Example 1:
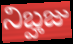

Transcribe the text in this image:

నిబ్హజు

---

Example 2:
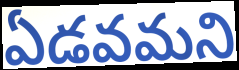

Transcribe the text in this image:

ఏడవమని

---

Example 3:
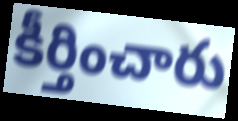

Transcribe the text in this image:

కీర్తించారు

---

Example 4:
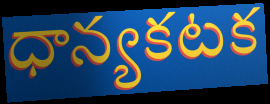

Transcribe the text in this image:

ధాన్యకటక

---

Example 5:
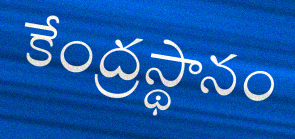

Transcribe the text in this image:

కేంద్రస్థానం